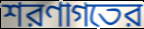
শরণাগতের